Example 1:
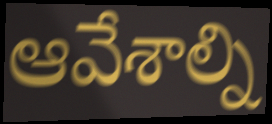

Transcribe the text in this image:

ఆవేశాల్ని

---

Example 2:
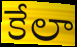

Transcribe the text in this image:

కేలా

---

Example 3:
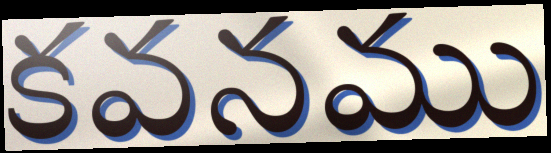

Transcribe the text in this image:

కవనము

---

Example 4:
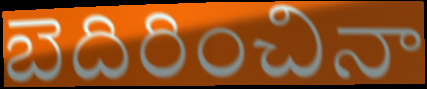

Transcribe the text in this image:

బెదిరించినా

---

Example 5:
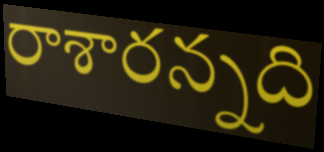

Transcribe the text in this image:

రాశారన్నది